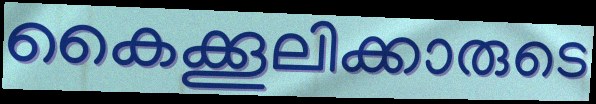
കൈക്കൂലിക്കാരുടെ